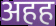
अहह